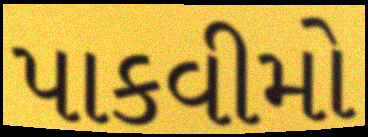
પાકવીમો